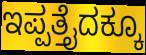
ಇಪ್ಪತ್ತೈದಕ್ಕೂ